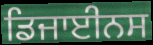
ਡਿਜਾਈਨਸ